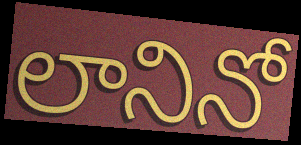
లానినో